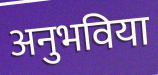
अनुभविया